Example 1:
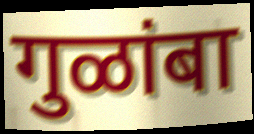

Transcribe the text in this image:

गुळांबा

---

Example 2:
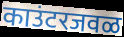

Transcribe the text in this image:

काउंटरजवळ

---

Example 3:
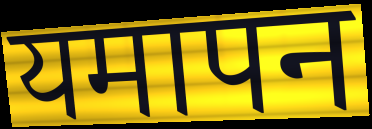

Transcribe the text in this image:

यमापन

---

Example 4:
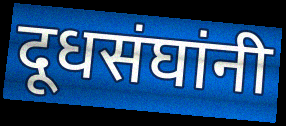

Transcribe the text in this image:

दूधसंघांनी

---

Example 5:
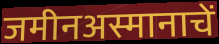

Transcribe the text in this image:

जमीनअस्मानाचें